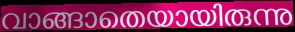
വാങ്ങാതെയായിരുന്നു